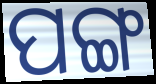
ପଙ୍ଗ